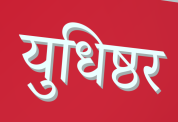
युधिष्ठर